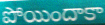
పోయిందాకా